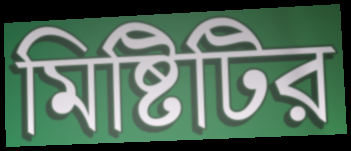
মিষ্টিটির